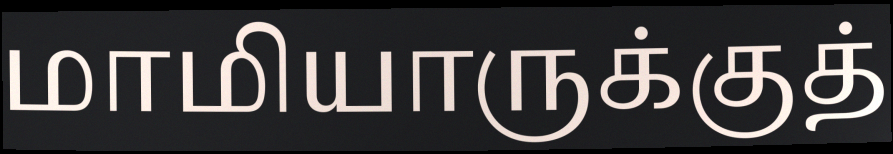
மாமியாருக்குத்